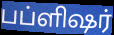
பப்ளிஷர்